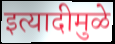
इत्यादीमुळे